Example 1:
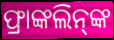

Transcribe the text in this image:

ଫ୍ରାଙ୍କଲିନ୍‌ଙ୍କ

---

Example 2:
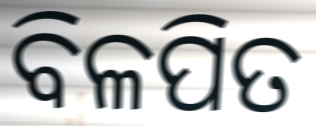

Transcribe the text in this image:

ବିଳପିତ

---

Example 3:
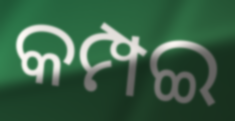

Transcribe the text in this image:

କମ୍ପଇ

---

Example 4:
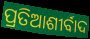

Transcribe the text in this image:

ପ୍ରତିଆଶୀର୍ବାଦ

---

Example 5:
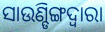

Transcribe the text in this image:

ସାଉଣ୍ଡିଙ୍ଗଦ୍ୱାରା